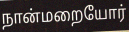
நான்மறையோர்